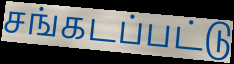
சங்கடப்பட்டு